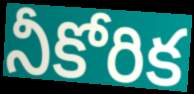
నీకోరిక